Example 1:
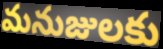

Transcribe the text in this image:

మనుజులకు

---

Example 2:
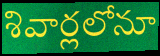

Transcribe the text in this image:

శివార్లలోనూ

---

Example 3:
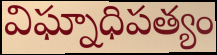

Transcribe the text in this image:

విఘ్నాధిపత్యం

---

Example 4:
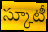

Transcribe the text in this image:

స్కూటీ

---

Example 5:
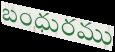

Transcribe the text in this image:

బంధురము